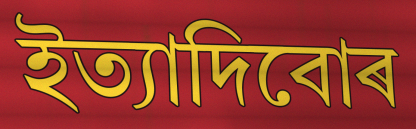
ইত্যাদিবোৰ